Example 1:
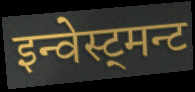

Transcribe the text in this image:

इन्वेस्ट्मन्ट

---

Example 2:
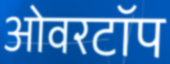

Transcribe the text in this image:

ओवरटॉप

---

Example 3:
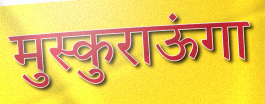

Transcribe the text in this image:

मुस्कुराऊंगा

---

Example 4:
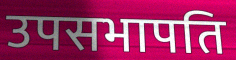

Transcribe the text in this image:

उपसभापति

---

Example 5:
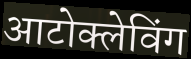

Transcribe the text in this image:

आटोक्लेविंग